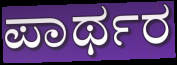
ಪಾರ್ಥರ